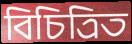
বিচিত্রিত